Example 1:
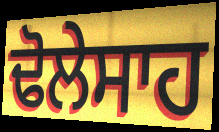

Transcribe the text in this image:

ਢੋਲੇਸਾਹ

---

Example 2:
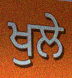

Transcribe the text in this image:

ਖੁਲੇ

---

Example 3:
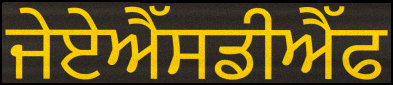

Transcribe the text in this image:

ਜੇਏਐੱਸਡੀਐੱਫ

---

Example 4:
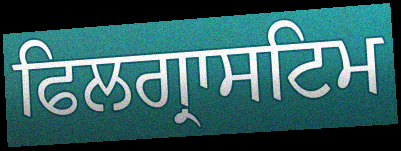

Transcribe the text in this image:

ਫਿਲਗ੍ਰਾਸਟਿਮ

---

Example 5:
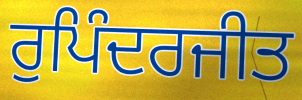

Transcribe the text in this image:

ਰੁਪਿੰਦਰਜੀਤ